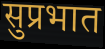
सुप्रभात